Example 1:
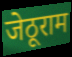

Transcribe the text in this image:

जेठूराम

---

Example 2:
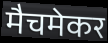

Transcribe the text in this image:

मैचमेकर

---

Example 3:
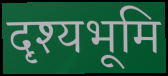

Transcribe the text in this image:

दृश्यभूमि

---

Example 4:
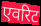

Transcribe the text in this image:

एवरिट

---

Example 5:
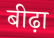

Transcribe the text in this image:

बीढ़ा